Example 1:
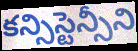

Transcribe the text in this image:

కన్సిస్టెన్సీని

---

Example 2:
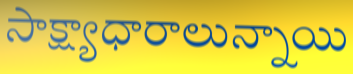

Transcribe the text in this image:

సాక్ష్యాధారాలున్నాయి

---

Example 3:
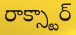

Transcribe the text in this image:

రాక్స్టార్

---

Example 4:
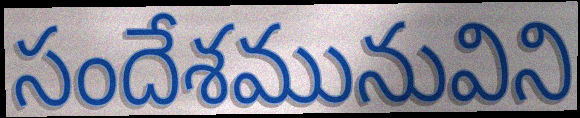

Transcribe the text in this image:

సందేశమునువిని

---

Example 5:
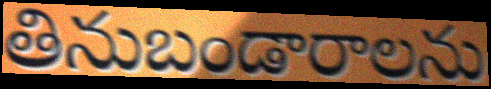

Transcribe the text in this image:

తినుబండారాలను